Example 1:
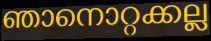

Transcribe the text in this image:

ഞാനൊറ്റക്കല്ല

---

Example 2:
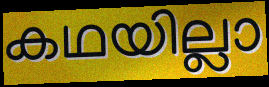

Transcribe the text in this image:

കഥയില്ലാ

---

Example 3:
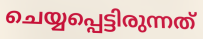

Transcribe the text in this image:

ചെയ്യപ്പെട്ടിരുന്നത്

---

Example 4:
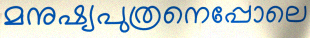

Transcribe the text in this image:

മനുഷ്യപുത്രനെപ്പോലെ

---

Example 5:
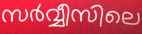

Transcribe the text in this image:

സർവ്വീസിലെ